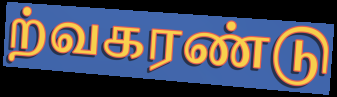
ற்வகரண்டு